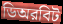
ডিঅরবিট